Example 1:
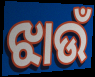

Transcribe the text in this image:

ଝାଉଁ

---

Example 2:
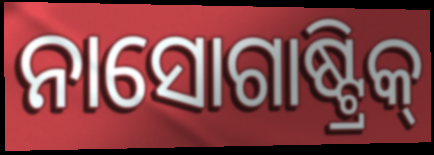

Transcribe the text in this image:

ନାସୋଗାଷ୍ଟ୍ରିକ୍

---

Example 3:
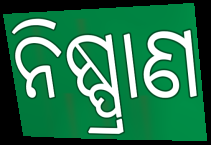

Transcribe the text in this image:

ନିଷ୍ପ୍ରାଣ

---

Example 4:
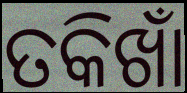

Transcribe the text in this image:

ତକିଖାଁ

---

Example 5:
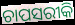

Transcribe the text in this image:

ଚାପସରୀକି